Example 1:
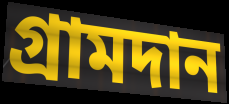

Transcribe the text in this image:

গ্রামদান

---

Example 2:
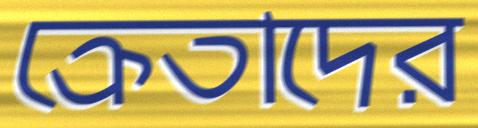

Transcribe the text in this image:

ক্রেতাদের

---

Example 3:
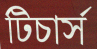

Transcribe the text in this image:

টিচার্স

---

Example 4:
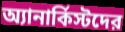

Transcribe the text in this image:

অ্যানার্কিস্টদের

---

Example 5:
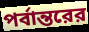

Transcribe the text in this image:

পর্বান্তরের